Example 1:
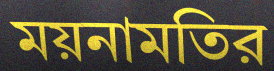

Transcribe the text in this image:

ময়নামতির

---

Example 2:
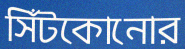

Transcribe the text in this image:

সিঁটকোনোর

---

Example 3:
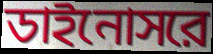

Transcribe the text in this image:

ডাইনোসরে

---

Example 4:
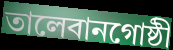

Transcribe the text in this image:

তালেবানগোষ্ঠী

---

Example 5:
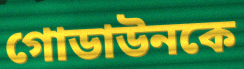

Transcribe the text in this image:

গোডাউনকে